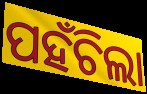
ପହଁଚିଲା